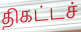
திகட்டச்